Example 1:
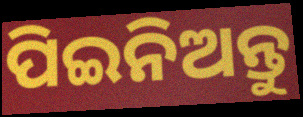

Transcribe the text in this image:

ପିଇନିଅନ୍ତୁ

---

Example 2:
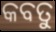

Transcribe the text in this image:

କବତୁ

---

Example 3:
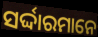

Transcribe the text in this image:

ସର୍ଦ୍ଦାରମାନେ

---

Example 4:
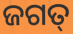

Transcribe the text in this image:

ଜଗତ୍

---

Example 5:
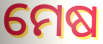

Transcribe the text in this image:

ମେଷ